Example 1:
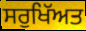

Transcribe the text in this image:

ਸਰੁਖਿੱਅਤ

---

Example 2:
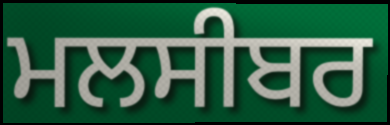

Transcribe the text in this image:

ਮਲਸੀਬਰ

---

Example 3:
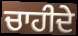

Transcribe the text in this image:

ਚਾਹੀਦੇ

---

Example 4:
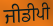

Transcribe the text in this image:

ਜੀਡੀਪੀ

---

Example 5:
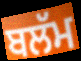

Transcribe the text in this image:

ਬਲੱਮ